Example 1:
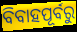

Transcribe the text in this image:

ବିବାହପୂର୍ବରୁ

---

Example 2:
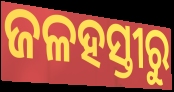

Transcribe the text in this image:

ଜଳହସ୍ତୀରୁ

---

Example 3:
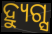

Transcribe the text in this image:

ହ୍ୟୁଗ୍ସ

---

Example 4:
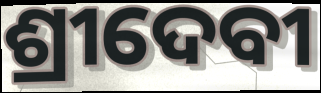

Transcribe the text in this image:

ଶ୍ରୀଦେବୀ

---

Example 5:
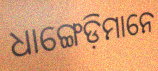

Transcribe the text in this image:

ଧାଙ୍ଗେଡ଼ିମାନେ